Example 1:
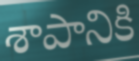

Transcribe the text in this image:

శాపానికి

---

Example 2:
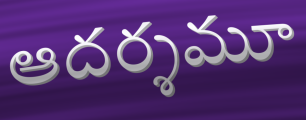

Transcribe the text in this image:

ఆదర్శమూ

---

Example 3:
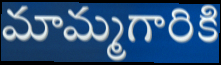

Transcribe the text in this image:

మామ్మగారికి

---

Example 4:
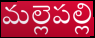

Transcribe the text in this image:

మల్లెపల్లి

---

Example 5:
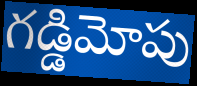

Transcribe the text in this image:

గడ్డిమోపు